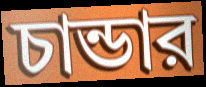
চান্ডার